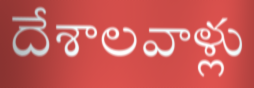
దేశాలవాళ్లు